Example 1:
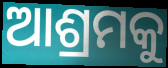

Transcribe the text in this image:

ଆଶ୍ରମକୁ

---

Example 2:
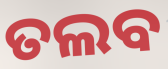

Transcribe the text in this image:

ତଲବ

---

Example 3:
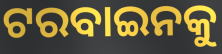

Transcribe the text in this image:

ଟରବାଇନକୁ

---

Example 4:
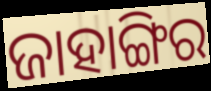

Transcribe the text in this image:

ଜାହାଙ୍ଗିର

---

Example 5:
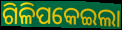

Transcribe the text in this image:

ଗିଳିପକେଇଲା